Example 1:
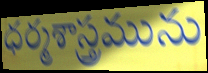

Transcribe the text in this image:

ధర్మశాస్త్రమును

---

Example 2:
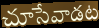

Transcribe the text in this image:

చూసేవాడట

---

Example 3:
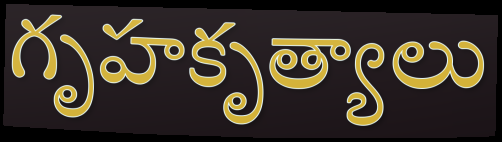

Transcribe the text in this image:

గృహకృత్యాలు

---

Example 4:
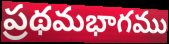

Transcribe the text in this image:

ప్రథమభాగము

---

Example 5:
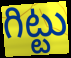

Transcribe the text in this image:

గిట్టు